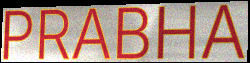
PRABHA